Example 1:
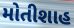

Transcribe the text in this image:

મોતીશાહ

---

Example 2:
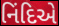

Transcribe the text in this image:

નિંદિએ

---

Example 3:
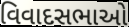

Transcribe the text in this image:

વિવાદસભાઓ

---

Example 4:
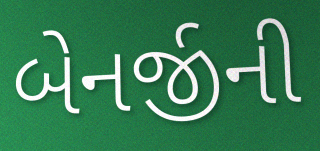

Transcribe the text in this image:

બેનર્જીની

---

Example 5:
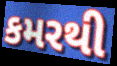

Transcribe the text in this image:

કમરથી